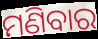
ମଣିବାର